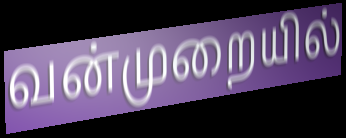
வன்முறையில்